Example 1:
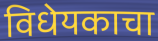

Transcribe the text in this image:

विधेयकाचा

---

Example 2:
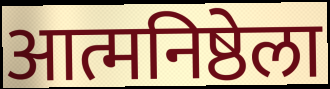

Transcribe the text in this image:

आत्मनिष्ठेला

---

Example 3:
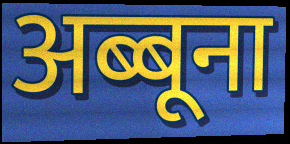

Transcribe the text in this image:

अब्बूना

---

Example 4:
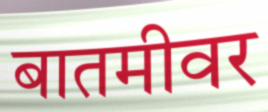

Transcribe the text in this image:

बातमीवर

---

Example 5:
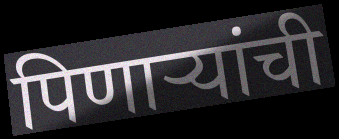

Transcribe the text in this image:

पिणाऱ्यांची